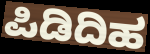
ಪಿಡಿದಿಹ